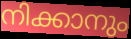
നിക്കാനും